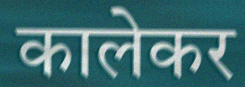
कालेकर